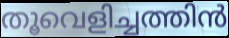
തൂവെളിച്ചത്തിൻ